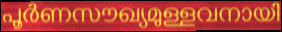
പൂർണസൗഖ്യമുള്ളവനായി